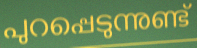
പുറപ്പെടുന്നുണ്ട്